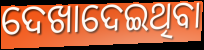
ଦେଖାଦେଇଥିବା